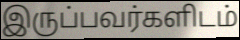
இருப்பவர்களிடம்